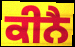
ਕੀਨੈ